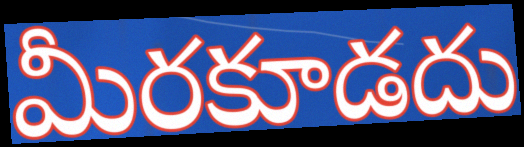
మీరకూడదు